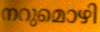
നറുമൊഴി